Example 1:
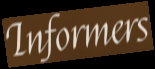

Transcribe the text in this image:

Informers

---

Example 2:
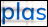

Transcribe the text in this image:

plas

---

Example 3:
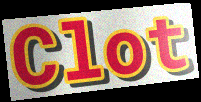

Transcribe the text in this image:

Clot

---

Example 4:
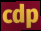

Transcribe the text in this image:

cdp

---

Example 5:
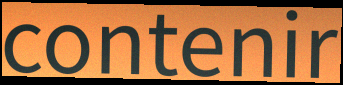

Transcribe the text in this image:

contenir